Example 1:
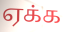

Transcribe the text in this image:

ஏக்க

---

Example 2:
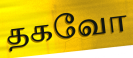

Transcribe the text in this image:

தகவோ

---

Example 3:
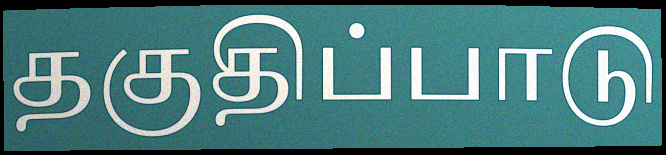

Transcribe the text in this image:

தகுதிப்பாடு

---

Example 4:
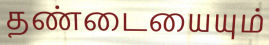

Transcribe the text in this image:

தண்டையையும்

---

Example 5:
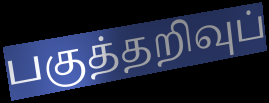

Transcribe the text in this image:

பகுத்தறிவுப்